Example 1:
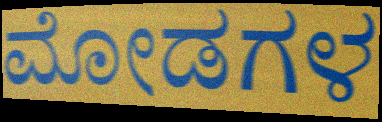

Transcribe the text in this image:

ಮೋಡಗಳ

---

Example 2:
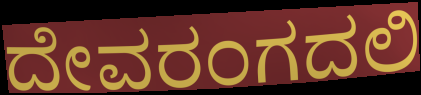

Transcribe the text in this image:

ದೇವರಂಗದಲಿ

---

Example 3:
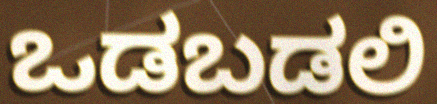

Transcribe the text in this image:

ಒಡಬಡಲಿ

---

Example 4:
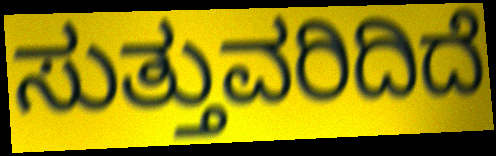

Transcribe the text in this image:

ಸುತ್ತುವರಿದಿದೆ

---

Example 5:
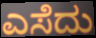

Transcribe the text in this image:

ಎಸೆದು